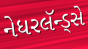
નેધરલૅન્ડ્સે